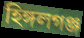
হিঙ্গলগঞ্জ